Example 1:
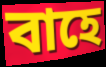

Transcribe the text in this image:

বাহে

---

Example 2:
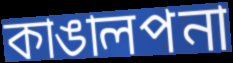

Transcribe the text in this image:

কাঙালপনা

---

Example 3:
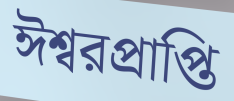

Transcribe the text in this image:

ঈশ্বরপ্রাপ্তি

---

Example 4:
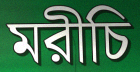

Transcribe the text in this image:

মরীচি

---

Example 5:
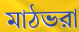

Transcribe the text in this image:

মাঠভরা